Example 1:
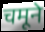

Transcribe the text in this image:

चमूने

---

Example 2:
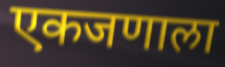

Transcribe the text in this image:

एकजणाला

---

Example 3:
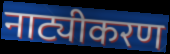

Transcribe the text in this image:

नाट्यीकरण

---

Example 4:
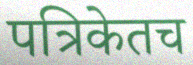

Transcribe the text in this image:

पत्रिकेतच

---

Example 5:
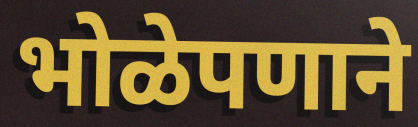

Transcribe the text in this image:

भोळेपणाने